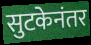
सुटकेनंतर